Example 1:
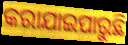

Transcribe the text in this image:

କରାଯାଇପାରୁଛି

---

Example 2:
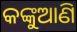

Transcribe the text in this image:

କଙ୍କୁଆଣି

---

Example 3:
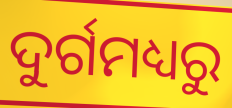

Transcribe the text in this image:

ଦୁର୍ଗମଧ୍ୟରୁ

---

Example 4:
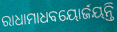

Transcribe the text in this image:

ରାଧାମାଧବୟୋର୍ଜୟନ୍ତି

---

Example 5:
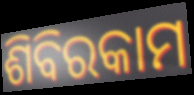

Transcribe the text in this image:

ଶିବିରକାମ